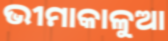
ଭୀମାକାଳୁଆ